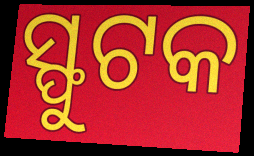
ସ୍ଫୁଟକ